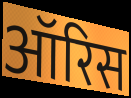
ऑरिस